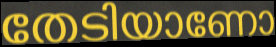
തേടിയാണോ